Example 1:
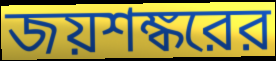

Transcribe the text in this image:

জয়শঙ্করের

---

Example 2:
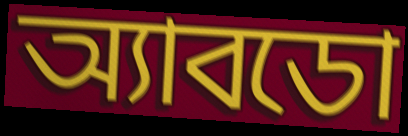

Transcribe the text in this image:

অ্যাবডো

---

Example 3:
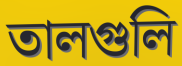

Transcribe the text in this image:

তালগুলি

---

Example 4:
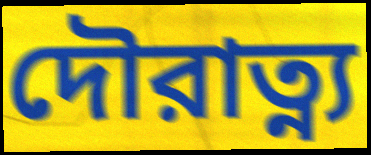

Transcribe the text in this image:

দৌরাত্ন্য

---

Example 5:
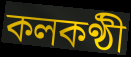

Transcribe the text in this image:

কলকণ্ঠী